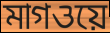
মাগওয়ে